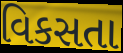
વિકસતા